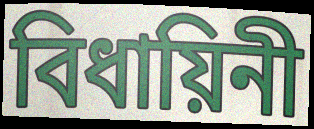
বিধায়িনী